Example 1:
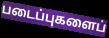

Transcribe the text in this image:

படைப்புகளைப்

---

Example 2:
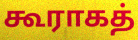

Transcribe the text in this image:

கூராகத்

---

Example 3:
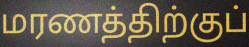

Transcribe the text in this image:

மரணத்திற்குப்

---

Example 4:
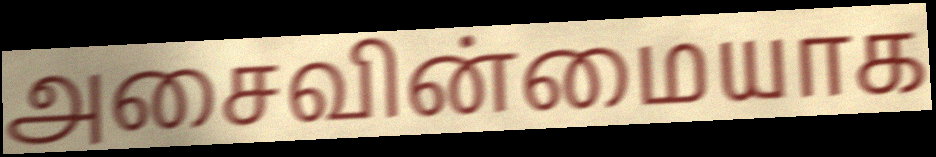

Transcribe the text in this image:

அசைவின்மையாக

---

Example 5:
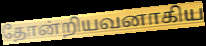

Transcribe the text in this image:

தோன்றியவனாகிய